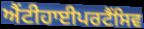
ਐਂਟੀਹਾਈਪਰਟੈਂਸਿਵ